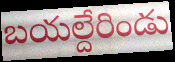
బయల్దేరిండు